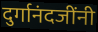
दुर्गानंदजींनी